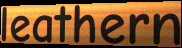
leathern